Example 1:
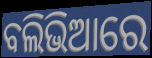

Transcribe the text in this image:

ବଲିଭିଆରେ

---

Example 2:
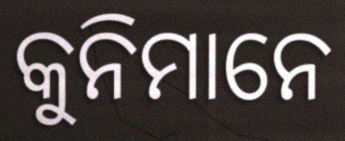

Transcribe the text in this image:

କୁନିମାନେ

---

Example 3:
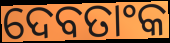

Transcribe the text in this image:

ଦେବତାଂକ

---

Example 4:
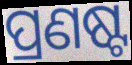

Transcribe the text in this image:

ପ୍ରଣଷ୍ଟ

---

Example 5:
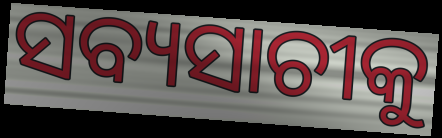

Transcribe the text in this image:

ସବ୍ୟସାଚୀକୁ